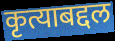
कृत्याबद्दल